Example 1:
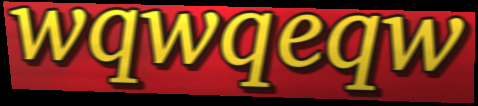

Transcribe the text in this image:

wqwqeqw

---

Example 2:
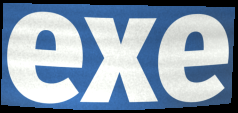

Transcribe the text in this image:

exe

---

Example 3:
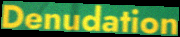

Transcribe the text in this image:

Denudation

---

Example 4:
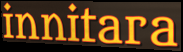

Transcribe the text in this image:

innitara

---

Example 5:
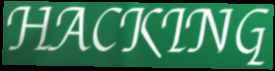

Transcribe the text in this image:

HACKING